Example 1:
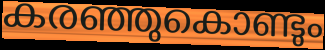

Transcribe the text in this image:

കരഞ്ഞുകൊണ്ടും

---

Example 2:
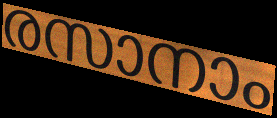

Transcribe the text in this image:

രസാനാം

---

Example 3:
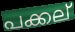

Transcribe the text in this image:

പക്കല്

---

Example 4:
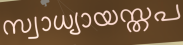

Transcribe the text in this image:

സ്വാധ്യായസ്തപ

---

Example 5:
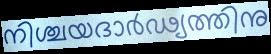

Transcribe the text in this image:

നിശ്ചയദാർഢ്യത്തിനു